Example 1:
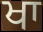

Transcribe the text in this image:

ਖਾ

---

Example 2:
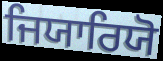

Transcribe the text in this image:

ਜਿਯਾਰਿਯੋ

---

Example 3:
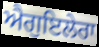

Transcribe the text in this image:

ਐਗੁਇਲੇਰਾ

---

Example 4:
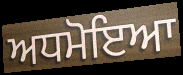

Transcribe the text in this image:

ਅਧਮੋਇਆ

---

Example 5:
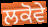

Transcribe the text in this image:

ਲਕੋਵੇ